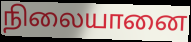
நிலையானை